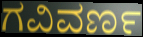
ಗವಿವರ್ಣ